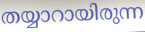
തയ്യാറായിരുന്ന